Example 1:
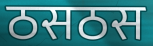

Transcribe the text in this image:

ठसठस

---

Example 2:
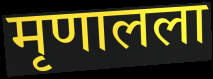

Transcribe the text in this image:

मृणालला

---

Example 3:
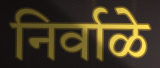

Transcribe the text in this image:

निर्वाळे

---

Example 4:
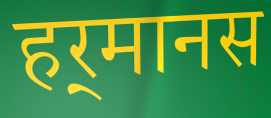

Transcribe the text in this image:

हर्मानस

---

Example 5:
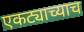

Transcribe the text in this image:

एकट्याच्याच